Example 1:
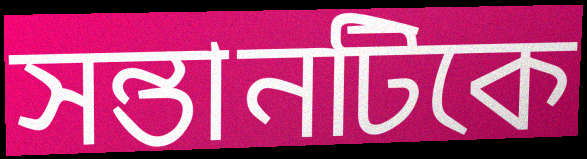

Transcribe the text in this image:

সন্তানটিকে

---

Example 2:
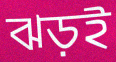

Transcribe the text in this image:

ঝড়ই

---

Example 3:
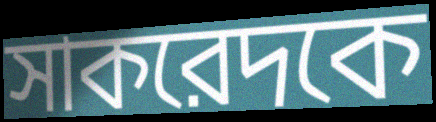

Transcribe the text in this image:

সাকরেদকে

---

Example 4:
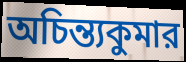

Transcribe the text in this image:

অচিন্ত্যকুমার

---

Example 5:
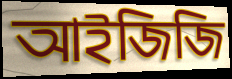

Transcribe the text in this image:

আইজিজি